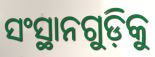
ସଂସ୍ଥାନଗୁଡ଼ିକୁ